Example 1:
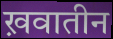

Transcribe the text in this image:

ख़वातीन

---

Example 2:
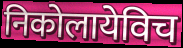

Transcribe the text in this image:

निकोलायेविच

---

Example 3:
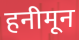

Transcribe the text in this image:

हनीमून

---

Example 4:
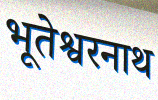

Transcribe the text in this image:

भूतेश्वरनाथ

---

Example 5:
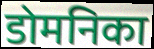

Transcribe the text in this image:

डोमनिका